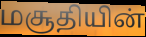
மசூதியின்